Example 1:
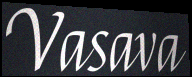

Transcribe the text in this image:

Vasava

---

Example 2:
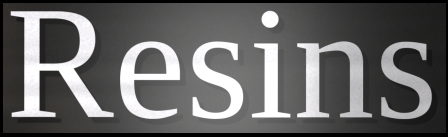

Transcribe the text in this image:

Resins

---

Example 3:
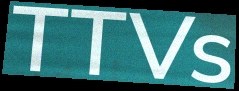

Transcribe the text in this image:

TTVs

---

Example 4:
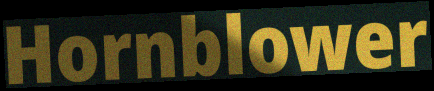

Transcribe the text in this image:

Hornblower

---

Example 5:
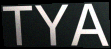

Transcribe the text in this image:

TYA